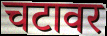
चटावर